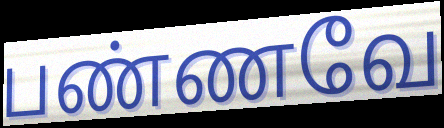
பண்ணவே